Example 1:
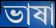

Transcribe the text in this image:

ভাষা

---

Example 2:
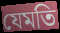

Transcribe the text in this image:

যেমতি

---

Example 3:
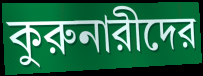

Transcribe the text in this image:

কুরুনারীদের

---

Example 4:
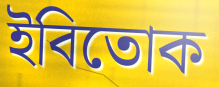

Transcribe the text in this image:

ইবিতোক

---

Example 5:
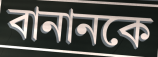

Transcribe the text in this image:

বানানকে